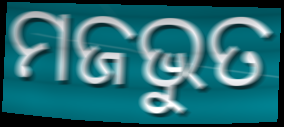
ମଜଭୁତ